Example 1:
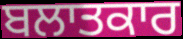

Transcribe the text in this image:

ਬਲਾਤਕਾਰ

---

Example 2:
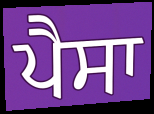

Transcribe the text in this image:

ਪੈਸਾ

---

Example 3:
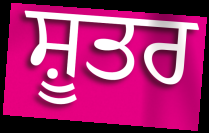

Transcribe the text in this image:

ਸ਼ੂਤਰ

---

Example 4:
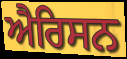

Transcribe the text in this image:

ਐਰਿਸਨ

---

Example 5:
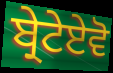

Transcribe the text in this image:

ਬ੍ਰੇਟੇਏਵੋ